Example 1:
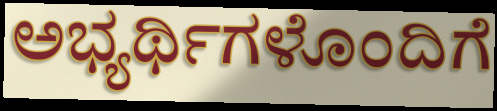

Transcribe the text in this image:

ಅಭ್ಯರ್ಥಿಗಳೊಂದಿಗೆ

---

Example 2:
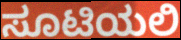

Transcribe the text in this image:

ಸೂಟಿಯಲಿ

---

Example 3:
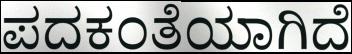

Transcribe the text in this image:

ಪದಕಂತೆಯಾಗಿದೆ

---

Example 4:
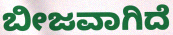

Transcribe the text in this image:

ಬೀಜವಾಗಿದೆ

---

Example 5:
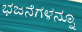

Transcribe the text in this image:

ಭಜನೆಗಳನ್ನೂ